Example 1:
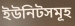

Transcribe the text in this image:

ইউনিটসমূহ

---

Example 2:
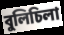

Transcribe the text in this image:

বুলিচিলা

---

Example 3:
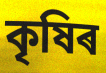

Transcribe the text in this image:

কৃষিৰ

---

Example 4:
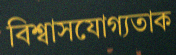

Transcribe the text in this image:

বিশ্বাসযোগ্যতাক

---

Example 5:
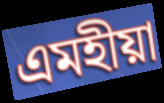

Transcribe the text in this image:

এমহীয়া